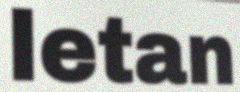
letan